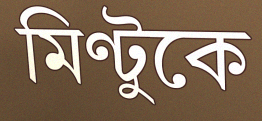
মিণ্টুকে